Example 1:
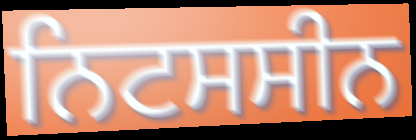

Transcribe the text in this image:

ਨਿਟਸਸੀਨ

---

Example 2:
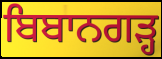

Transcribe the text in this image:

ਬਿਬਾਨਗੜ੍ਹ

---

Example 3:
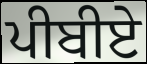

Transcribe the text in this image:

ਪੀਬੀਏ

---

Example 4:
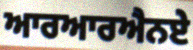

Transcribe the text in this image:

ਆਰਆਰਐਨਏ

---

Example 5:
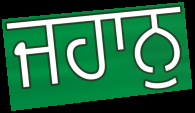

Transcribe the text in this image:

ਜਹਾਨੁ